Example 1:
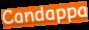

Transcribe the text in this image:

Candappa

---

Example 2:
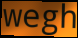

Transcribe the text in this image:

wegh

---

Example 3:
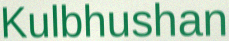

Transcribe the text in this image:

Kulbhushan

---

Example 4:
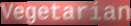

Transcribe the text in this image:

Vegetarian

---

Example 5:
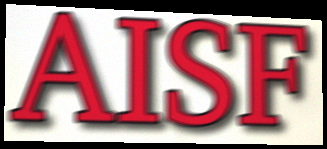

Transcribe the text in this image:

AISF